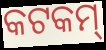
କଟକମ୍